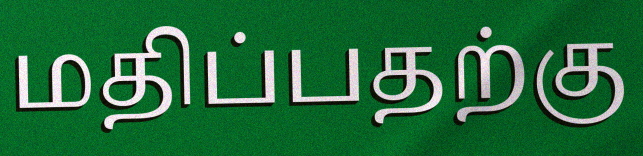
மதிப்பதற்கு